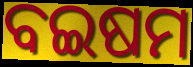
ବଇଷମ